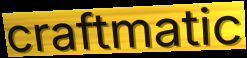
craftmatic